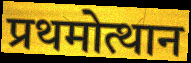
प्रथमोत्थान